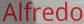
Alfredo